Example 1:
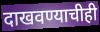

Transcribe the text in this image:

दाखवण्याचीही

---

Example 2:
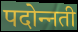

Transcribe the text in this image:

पदोन्‍नती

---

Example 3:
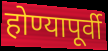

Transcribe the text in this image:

होण्यापूर्वी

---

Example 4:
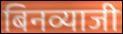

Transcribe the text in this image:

बिनव्याजी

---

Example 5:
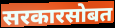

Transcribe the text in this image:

सरकारसोबत